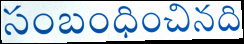
సంబంధించినది